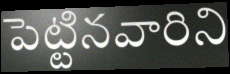
పెట్టినవారిని